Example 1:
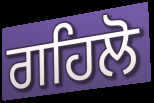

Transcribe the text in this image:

ਗਹਿਲੋ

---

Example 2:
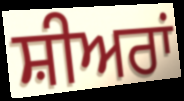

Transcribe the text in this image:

ਸ਼ੀਅਰਾਂ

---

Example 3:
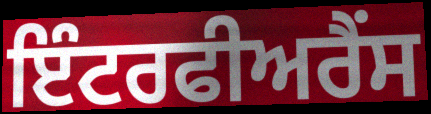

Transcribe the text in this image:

ਇੰਟਰਫੀਅਰੈਂਸ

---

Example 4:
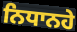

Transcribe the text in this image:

ਨਿਧਾਨਹੇ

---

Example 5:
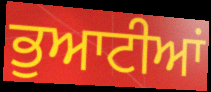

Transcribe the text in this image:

ਭੁਆਟੀਆਂ